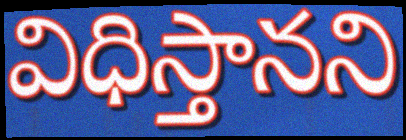
విధిస్తానని